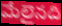
మేలైనది